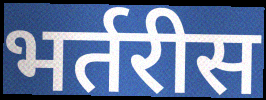
भर्तरीस